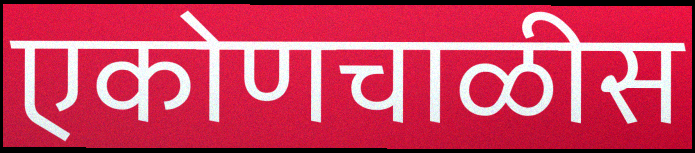
एकोणचाळीस